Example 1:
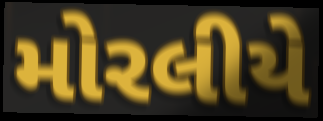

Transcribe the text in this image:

મોરલીયે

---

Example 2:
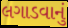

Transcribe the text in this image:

લગાડવાનું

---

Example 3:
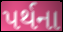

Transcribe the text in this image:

પર્થના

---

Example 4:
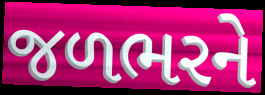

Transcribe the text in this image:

જળભરને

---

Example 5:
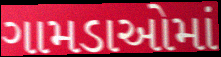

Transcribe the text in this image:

ગામડાઓમાં